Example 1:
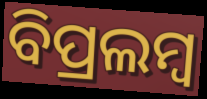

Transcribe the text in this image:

ବିପ୍ରଲମ୍ବ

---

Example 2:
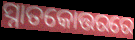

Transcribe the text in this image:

ସ୍ନାତକୋତ୍ତରରେ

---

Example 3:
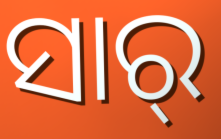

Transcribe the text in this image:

ସାର୍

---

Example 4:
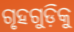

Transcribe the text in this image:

ଗୃହଗୁଡ଼ିକୁ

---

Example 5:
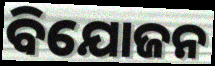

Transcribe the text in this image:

ବିଯୋଜନ